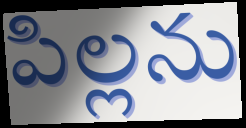
పిల్లను